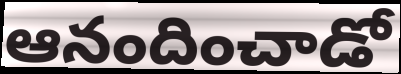
ఆనందించాడో